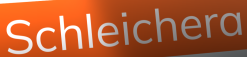
Schleichera